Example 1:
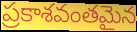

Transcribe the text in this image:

ప్రకాశవంతమైన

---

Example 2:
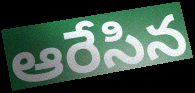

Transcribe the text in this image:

ఆరేసిన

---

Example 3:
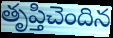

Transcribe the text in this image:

తృప్తిచెందిన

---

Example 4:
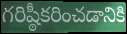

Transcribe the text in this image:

గరిష్ఠీకరించడానికి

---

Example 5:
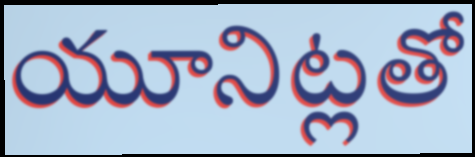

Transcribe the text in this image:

యూనిట్లతో